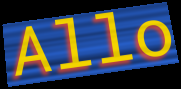
Allo